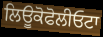
ਲਿਊਕੋਫੋਲੀਓਟਾ